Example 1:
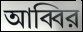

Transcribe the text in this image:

আব্বির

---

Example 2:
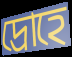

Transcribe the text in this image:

দ্রোহে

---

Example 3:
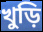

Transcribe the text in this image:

খুড়ি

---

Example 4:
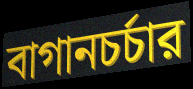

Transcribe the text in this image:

বাগানচর্চার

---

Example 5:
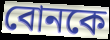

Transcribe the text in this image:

বোনকে